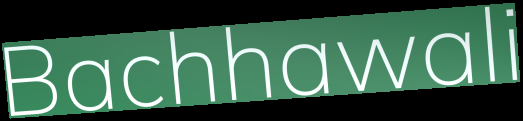
Bachhawali